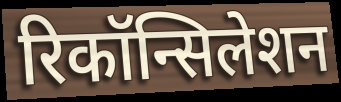
रिकॉन्सिलेशन